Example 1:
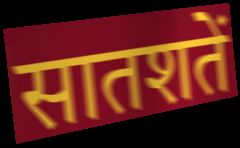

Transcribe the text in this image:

सातशतें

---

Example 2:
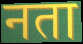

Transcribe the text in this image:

नता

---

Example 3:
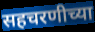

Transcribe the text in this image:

सहचरणीच्या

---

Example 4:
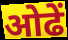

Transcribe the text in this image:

ओढें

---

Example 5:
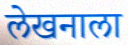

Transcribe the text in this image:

लेखनाला